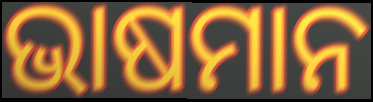
ଭାଷମାନ